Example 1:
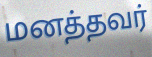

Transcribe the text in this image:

மனத்தவர்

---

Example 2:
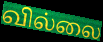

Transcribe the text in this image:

வில்லை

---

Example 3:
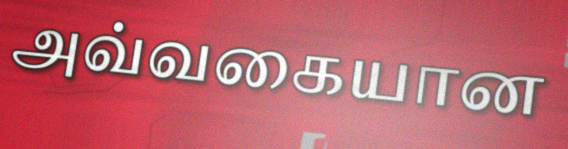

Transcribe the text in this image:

அவ்வகையான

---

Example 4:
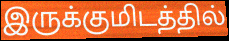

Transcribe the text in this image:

இருக்குமிடத்தில்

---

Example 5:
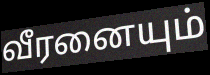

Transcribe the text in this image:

வீரனையும்